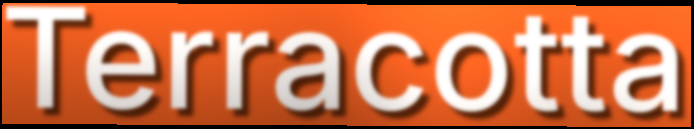
Terracotta